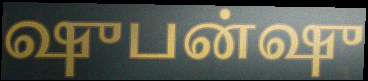
ஷுபன்ஷு